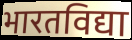
भारतविद्या